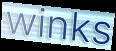
winks